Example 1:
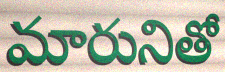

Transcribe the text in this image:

మారునితో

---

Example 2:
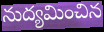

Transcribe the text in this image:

నుద్యమించిన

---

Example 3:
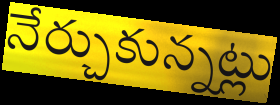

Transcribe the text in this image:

నేర్చుకున్నట్లు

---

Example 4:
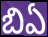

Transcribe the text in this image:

బిఏ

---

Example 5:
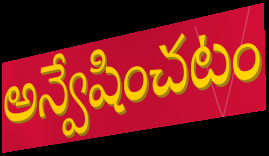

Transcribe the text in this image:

అన్వేషించటం